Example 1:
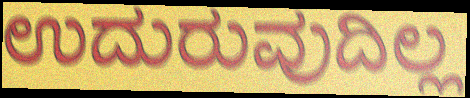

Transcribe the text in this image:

ಉದುರುವುದಿಲ್ಲ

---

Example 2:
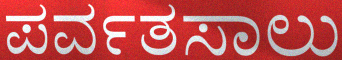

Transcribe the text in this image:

ಪರ್ವತಸಾಲು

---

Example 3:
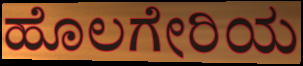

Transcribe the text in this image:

ಹೊಲಗೇರಿಯ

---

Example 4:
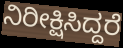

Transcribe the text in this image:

ನಿರೀಕ್ಷಿಸಿದ್ದರೆ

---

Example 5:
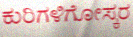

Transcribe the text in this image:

ಕುರಿಗಳಿಗೋಸ್ಕರ